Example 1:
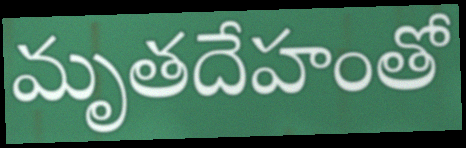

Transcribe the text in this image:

మృతదేహంతో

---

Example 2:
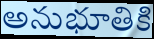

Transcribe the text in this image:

అనుభూతికి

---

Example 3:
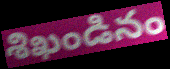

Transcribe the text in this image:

శిఖండినం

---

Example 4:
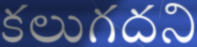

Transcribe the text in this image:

కలుగదని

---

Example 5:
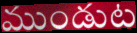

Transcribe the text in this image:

ముండుట